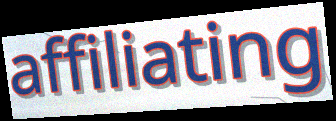
affiliating